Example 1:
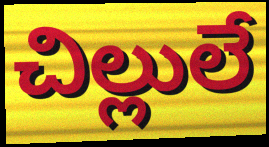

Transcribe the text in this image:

చిల్లులే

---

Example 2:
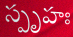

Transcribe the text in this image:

స్పృహః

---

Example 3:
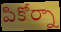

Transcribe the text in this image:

పికోర్నా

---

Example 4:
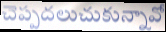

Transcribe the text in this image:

చెప్పదలుచుకున్నావో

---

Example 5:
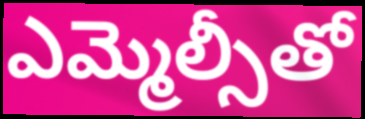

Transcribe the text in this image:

ఎమ్మెల్సీతో